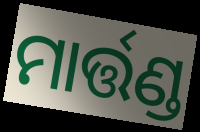
ମାର୍ତ୍ତଣ୍ଡ